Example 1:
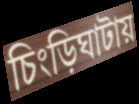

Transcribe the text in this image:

চিংড়িঘাটায়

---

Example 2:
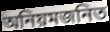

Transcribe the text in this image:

অনিয়মজনিত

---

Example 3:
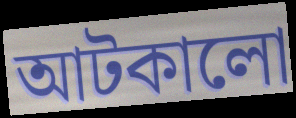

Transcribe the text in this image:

আটকালো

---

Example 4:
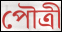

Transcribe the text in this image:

পৌত্রী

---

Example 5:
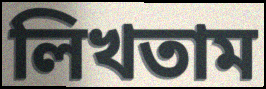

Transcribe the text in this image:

লিখতাম